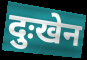
दुःखेन